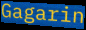
Gagarin